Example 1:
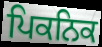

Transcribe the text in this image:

ਪਿਕਨਿਕ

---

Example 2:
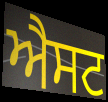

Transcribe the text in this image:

ਐਸਟ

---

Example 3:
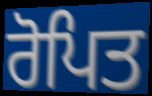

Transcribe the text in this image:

ਰੋਪਿਤ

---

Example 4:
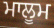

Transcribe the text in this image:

ਮਾਲੂਮ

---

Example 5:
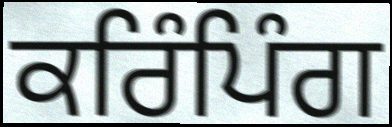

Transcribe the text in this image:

ਕਰਿੰਪਿੰਗ